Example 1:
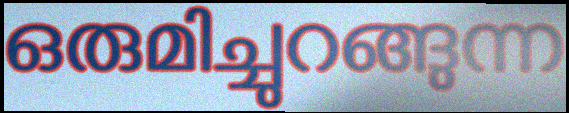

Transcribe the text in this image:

ഒരുമിച്ചുറങ്ങുന്ന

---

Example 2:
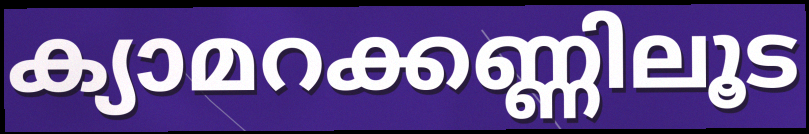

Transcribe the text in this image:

ക്യാമറക്കണ്ണിലൂട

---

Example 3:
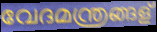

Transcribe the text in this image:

വേദമന്ത്രങ്ങള്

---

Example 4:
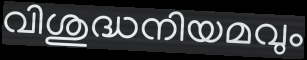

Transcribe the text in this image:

വിശുദ്ധനിയമവും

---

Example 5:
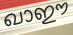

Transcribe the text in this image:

ഖാഈ